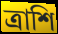
ত্রাশি